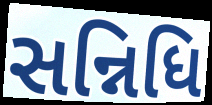
સન્નિધિ